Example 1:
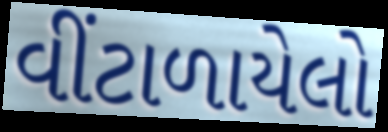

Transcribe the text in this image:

વીંટાળાયેલો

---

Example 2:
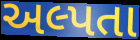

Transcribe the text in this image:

અલ્પતા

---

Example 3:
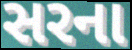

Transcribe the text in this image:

સરના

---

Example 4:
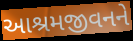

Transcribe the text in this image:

આશ્રમજીવનને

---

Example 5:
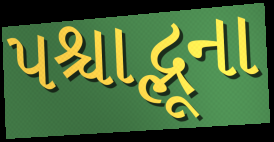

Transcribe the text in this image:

પશ્ચાદ્ભૂના